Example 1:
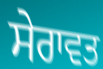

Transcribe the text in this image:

ਸੇਰਾਵਤ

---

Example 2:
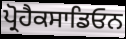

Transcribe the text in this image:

ਪ੍ਰੋਹੈਕਸਾਡਿਓਨ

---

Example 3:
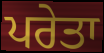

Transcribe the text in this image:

ਪਰੇਤਾ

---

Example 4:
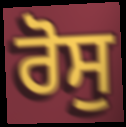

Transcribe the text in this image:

ਰੋਸੁ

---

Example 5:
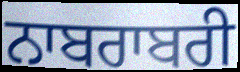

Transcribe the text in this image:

ਨਾਬਰਾਬਰੀ